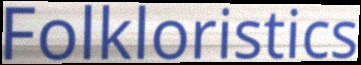
Folkloristics